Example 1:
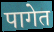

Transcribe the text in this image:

पागेत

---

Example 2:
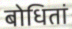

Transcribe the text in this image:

बोधितां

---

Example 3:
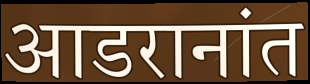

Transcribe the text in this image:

आडरानांत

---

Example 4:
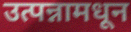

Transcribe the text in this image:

उत्पन्नामधून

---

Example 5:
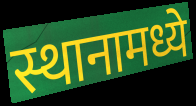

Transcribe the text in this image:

स्थानामध्ये